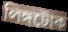
লিঙ্গটোক